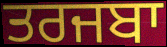
ਤਰਜਬਾ